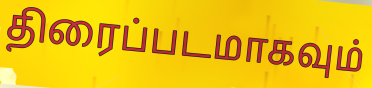
திரைப்படமாகவும்